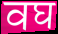
वघ